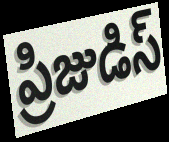
ప్రిజుడిస్